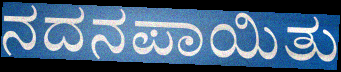
ನದನಪಾಯಿತು